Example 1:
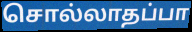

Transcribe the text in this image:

சொல்லாதப்பா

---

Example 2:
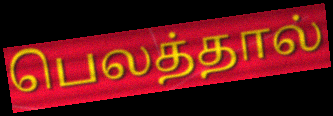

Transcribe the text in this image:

பெலத்தால்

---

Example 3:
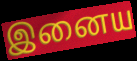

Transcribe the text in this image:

இனைய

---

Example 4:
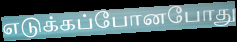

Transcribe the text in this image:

எடுக்கப்போனபோது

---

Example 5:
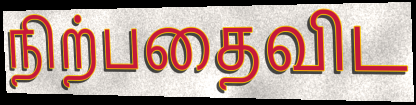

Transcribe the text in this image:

நிற்பதைவிட